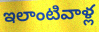
ఇలాంటివాళ్ల